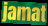
jamat